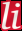
li